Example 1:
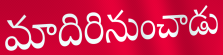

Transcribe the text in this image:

మాదిరినుంచాడు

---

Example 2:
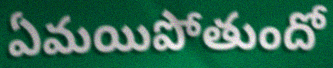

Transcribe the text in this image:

ఏమయిపోతుందో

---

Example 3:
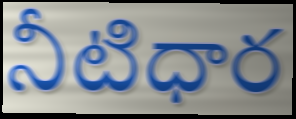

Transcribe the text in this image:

నీటిధార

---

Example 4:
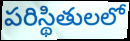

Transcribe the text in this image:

పరిస్థితులలో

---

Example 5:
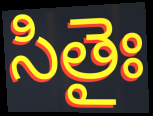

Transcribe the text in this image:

సితైః